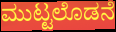
ಮುಟ್ಟಲೊಡನೆ